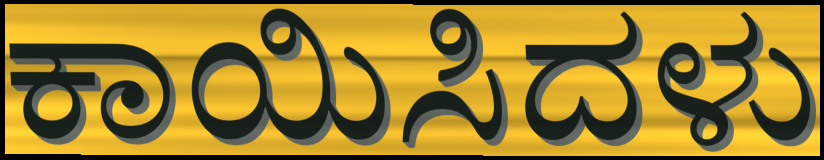
ಕಾಯಿಸಿದಳು